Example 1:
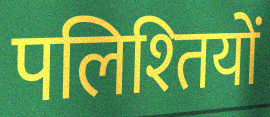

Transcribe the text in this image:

पलिश्‍तियों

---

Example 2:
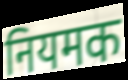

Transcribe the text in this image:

नियमक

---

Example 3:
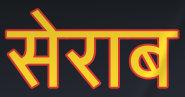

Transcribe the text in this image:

सेराब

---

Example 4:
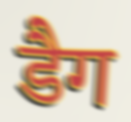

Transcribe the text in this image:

डैग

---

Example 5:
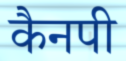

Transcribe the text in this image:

कैनपी